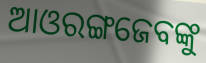
ଆଓରଙ୍ଗଜେବଙ୍କୁ